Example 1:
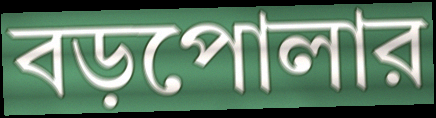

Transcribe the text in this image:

বড়পোলার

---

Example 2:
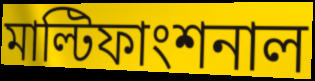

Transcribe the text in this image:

মাল্টিফাংশনাল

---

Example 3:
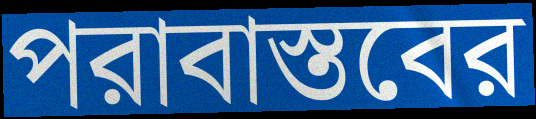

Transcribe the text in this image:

পরাবাস্তবের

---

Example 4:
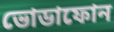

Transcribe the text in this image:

ভোডাফোন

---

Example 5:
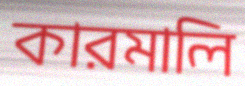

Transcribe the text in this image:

কারমালি